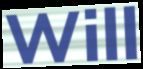
Will